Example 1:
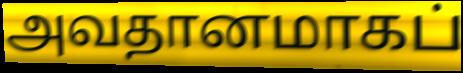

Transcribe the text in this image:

அவதானமாகப்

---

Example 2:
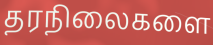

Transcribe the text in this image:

தரநிலைகளை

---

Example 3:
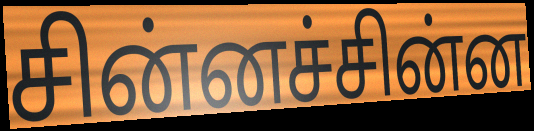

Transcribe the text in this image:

சின்னச்சின்ன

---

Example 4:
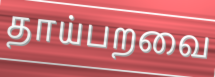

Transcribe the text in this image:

தாய்பறவை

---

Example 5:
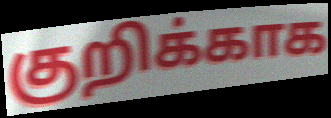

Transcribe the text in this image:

குறிக்காக